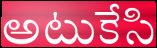
అటుకేసి